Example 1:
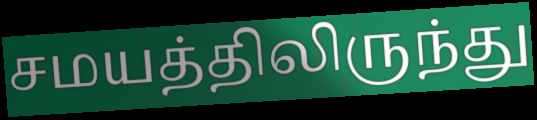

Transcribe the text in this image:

சமயத்திலிருந்து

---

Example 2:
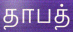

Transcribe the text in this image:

தாபத்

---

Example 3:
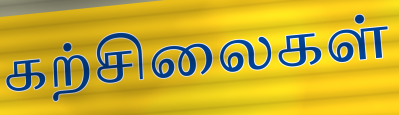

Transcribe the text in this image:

கற்சிலைகள்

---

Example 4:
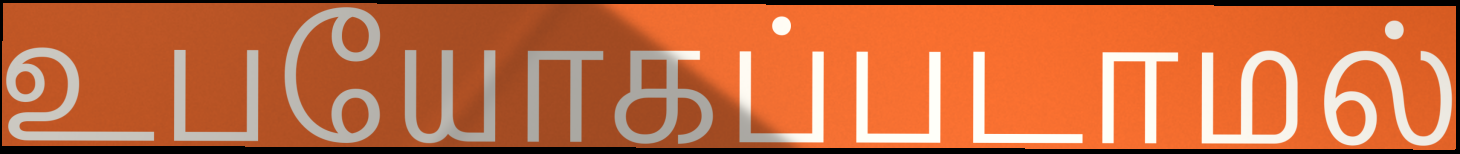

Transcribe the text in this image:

உபயோகப்படாமல்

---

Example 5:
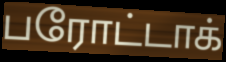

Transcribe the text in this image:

பரோட்டாக்